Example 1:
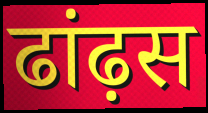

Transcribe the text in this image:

ढांढ़स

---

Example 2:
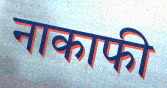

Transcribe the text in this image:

नाकाफी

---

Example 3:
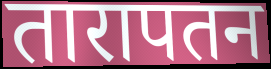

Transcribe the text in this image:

तारापतन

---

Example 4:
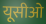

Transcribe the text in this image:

यूसीओ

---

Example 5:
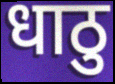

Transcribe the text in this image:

धाठु